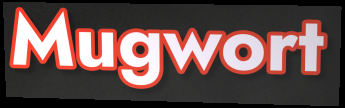
Mugwort